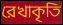
রেখাকৃতি